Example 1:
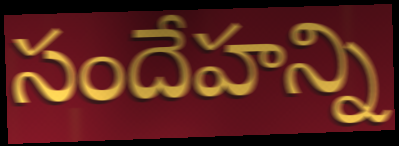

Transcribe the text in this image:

సందేహన్ని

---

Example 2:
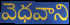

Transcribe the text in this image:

వెధవాని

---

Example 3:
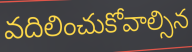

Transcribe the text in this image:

వదిలించుకోవాల్సిన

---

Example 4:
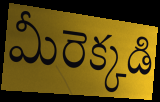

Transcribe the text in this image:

మీరెక్కడి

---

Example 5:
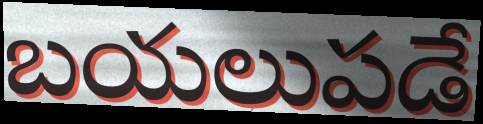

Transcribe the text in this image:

బయలుపడే